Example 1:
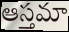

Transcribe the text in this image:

ఆస్తమా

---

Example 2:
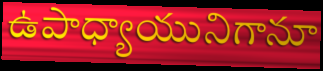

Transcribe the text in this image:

ఉపాధ్యాయునిగానూ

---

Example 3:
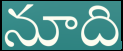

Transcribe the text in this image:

నూది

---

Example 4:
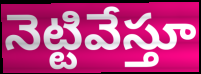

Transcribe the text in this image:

నెట్టివేస్తూ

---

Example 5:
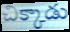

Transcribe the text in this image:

చిక్కాడు